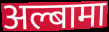
अल्बामा